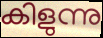
കിളുന്നു